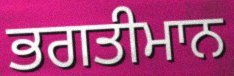
ਭਗਤੀਮਾਨ